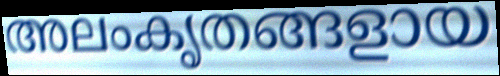
അലംകൃതങ്ങളായ